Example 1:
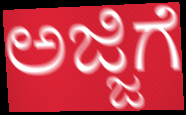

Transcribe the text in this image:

ಅಜ್ಜಿಗೆ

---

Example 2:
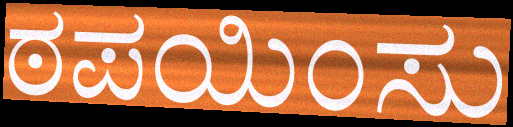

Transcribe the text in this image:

ಠಪಯಿಂಸು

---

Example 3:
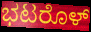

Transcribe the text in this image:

ಭಟರೊಳ್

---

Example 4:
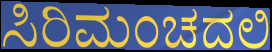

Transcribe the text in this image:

ಸಿರಿಮಂಚದಲಿ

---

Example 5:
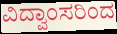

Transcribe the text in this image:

ವಿದ್ವಾಂಸರಿಂದ